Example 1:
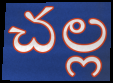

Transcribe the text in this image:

చల్ల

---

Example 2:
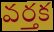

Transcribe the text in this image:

వర్తక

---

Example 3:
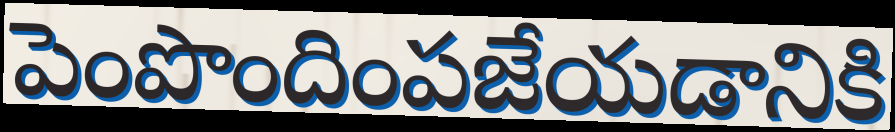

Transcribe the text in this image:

పెంపొందింపజేయడానికి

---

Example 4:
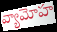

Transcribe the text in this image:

వ్యామోహ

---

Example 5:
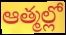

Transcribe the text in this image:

ఆత్మల్లో